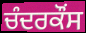
ਚੰਦਰਕੌਂਸ